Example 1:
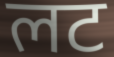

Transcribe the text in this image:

लट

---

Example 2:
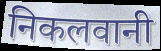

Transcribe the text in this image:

निकलवानी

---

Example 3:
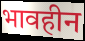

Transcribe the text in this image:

भावहीन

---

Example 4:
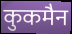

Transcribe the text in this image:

कुकमैन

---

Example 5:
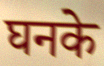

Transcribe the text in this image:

घनके